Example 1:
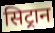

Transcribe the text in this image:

सिट्रान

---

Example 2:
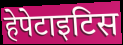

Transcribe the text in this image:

हेपेटाइटिस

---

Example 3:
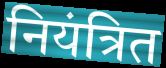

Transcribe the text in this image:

नियंत्रित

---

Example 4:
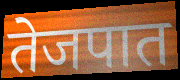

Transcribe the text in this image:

तेजपात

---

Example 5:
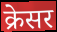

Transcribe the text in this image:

क्रेसर